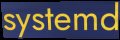
systemd